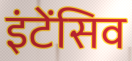
इंटेंसिव